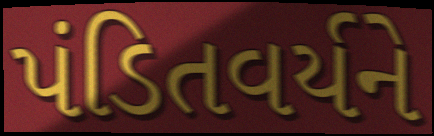
પંડિતવર્યને